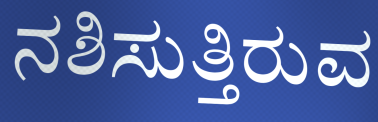
ನಶಿಸುತ್ತಿರುವ